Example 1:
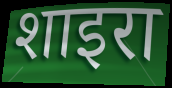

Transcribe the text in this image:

शाइरा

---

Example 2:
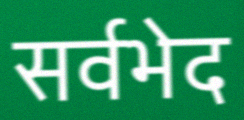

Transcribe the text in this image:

सर्वभेद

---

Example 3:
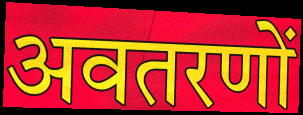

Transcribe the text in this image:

अवतरणों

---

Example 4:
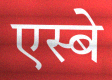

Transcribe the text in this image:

एस्बे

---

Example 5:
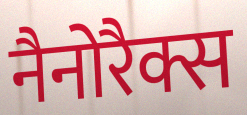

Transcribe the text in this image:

नैनोरैक्स